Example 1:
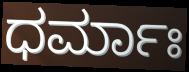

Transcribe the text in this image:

ಧರ್ಮಾಃ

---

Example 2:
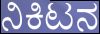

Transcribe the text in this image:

ನಿಕಿಟನ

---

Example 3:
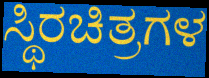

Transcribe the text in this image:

ಸ್ಥಿರಚಿತ್ರಗಳ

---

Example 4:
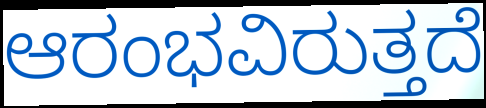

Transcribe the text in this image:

ಆರಂಭವಿರುತ್ತದೆ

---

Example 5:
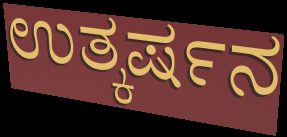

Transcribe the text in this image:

ಉತ್ಕರ್ಷನ